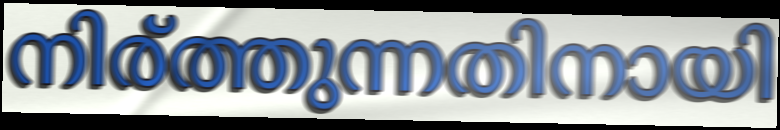
നിര്ത്തുന്നതിനായി